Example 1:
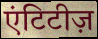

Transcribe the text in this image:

एंटिटीज़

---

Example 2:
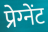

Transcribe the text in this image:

प्रेग्‍नेंट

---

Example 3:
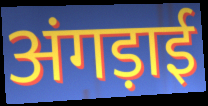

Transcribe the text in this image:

अंगड़ाई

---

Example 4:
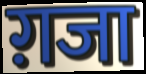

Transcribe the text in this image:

ग़जा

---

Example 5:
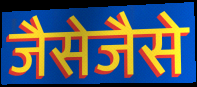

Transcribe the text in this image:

जैसेजैसे